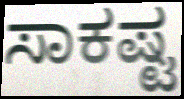
ಸಾಕಷ್ಟ